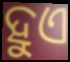
ହୁଏ